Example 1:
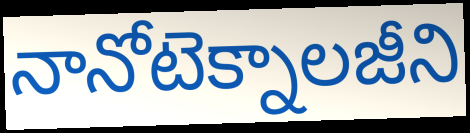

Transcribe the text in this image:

నానోటెక్నాలజీని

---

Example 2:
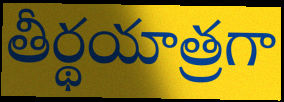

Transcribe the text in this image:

తీర్థయాత్రగా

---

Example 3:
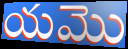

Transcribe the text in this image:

యమొ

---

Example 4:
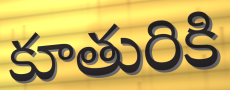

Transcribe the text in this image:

కూతురికి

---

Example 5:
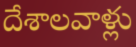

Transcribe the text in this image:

దేశాలవాళ్లు